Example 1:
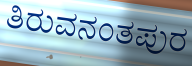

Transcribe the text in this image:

ತಿರುವನಂತಪುರ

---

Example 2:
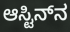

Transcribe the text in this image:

ಆಸ್ಟಿನ್‌ನ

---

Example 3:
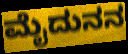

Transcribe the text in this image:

ಮೈದುನನ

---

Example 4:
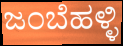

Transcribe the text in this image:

ಜಂಬೆಹಳ್ಳಿ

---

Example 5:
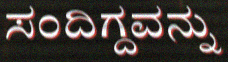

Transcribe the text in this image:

ಸಂದಿಗ್ದವನ್ನು